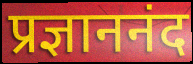
प्रज्ञाननंद